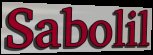
Sabolil